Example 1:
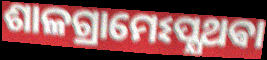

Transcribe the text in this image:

ଶାଳଗ୍ରାମେଽପ୍ଯଥଵା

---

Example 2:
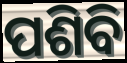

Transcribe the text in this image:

ପଶିବି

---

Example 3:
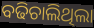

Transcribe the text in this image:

ବଢିଚାଲିଥିଲା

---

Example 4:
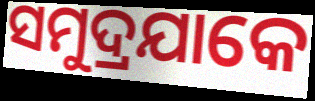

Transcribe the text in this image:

ସମୁଦ୍ରଯାକେ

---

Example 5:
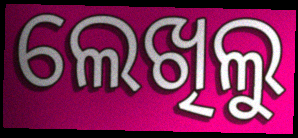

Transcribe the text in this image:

ଲେଖିଲୁ